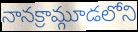
నానక్రామ్గూడలోని